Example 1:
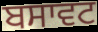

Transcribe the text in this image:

ਬਸਾਵਟ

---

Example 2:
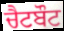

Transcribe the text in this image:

ਚੈਟਬੌਟ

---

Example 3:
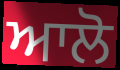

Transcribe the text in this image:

ਆਲੋ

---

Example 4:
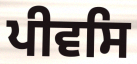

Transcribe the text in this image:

ਪੀਵਸਿ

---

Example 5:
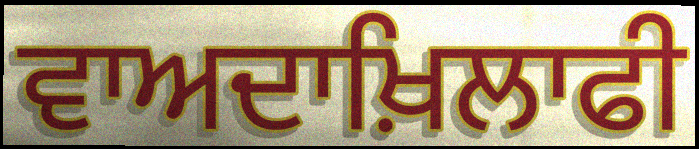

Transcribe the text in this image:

ਵਾਅਦਾਖ਼ਿਲਾਫੀ